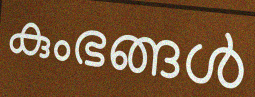
കുംഭങ്ങൾ